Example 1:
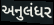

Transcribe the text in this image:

અનુલંધર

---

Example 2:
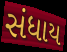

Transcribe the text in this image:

સંધાય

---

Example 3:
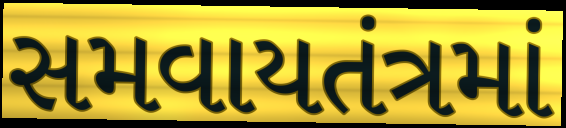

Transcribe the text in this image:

સમવાયતંત્રમાં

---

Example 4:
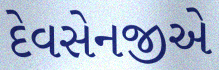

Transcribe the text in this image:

દેવસેનજીએ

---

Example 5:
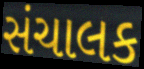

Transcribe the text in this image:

સંચાલક